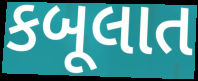
કબૂલાત